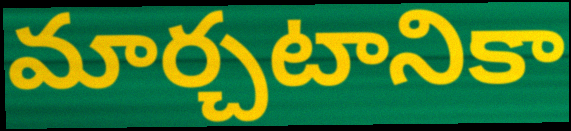
మార్చటానికా